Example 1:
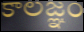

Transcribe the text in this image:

కాలజ్ఞం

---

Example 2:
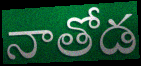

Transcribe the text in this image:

నాతోడ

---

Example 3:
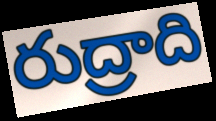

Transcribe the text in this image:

రుద్రాది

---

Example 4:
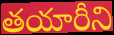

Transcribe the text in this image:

తయారీని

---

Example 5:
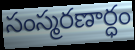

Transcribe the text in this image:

సంస్మరణార్ధం